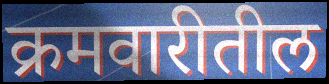
क्रमवारीतील